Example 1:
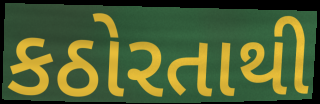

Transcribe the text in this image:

કઠોરતાથી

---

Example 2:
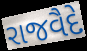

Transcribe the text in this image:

રાજવૈદે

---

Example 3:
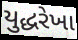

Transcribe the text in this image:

યુદ્ધરેખા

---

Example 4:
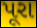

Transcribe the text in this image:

પૂરા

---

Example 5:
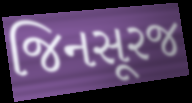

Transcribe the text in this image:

જિનસૂરજ